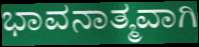
ಭಾವನಾತ್ಮವಾಗಿ